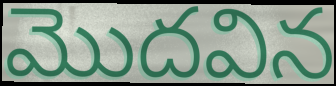
మొదవిన